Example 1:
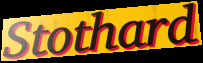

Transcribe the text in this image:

Stothard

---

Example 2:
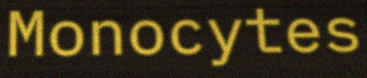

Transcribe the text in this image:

Monocytes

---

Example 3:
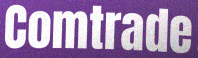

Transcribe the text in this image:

Comtrade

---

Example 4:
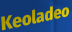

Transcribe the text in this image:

Keoladeo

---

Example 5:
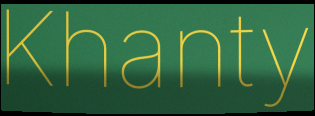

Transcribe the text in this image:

Khanty